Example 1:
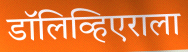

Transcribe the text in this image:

डॉलिव्हिएराला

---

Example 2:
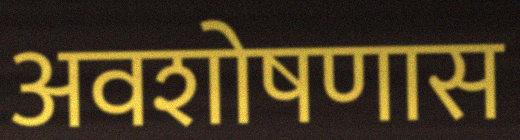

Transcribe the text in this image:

अवशोषणास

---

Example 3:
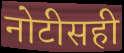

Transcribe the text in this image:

नोटीसही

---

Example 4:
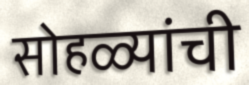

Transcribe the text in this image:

सोहळ्यांची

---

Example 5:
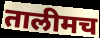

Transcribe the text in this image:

तालीमच